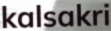
kalsakri